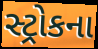
સ્ટ્રોકના